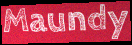
Maundy